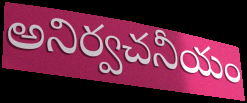
అనిర్వచనీయం